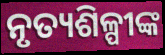
ନୃତ୍ୟଶିଳ୍ପୀଙ୍କ